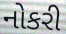
નોકરી